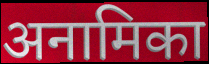
अनामिका